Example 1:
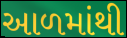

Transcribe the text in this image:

આળમાંથી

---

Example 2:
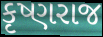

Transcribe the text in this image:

કૃષ્ણરાજ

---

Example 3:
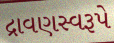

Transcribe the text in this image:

દ્રાવણસ્વરૂપે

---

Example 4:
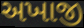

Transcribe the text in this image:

અખાજી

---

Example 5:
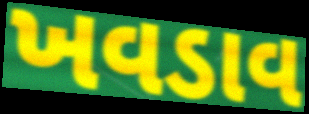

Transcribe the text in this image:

ખવડાવ